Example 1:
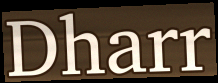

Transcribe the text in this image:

Dharr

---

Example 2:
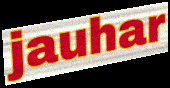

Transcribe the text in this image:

jauhar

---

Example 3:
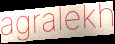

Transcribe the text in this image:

agralekh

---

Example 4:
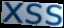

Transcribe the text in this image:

xss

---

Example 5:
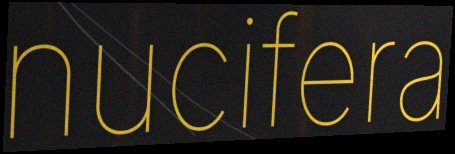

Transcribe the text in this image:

nucifera